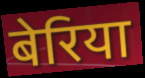
बेरिया